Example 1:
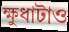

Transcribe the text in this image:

ক্ষুধাটাও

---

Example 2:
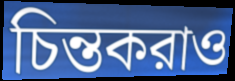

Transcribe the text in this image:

চিন্তকরাও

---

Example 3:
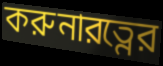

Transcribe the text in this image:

করুনারত্নের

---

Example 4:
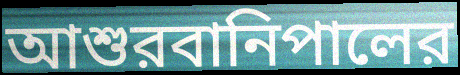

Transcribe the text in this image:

আশুরবানিপালের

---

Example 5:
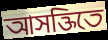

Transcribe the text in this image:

আসক্তিতে